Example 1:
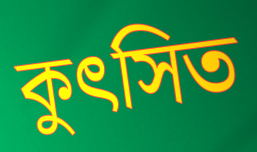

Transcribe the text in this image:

কুৎসিত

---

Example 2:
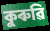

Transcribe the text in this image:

কুৰুৱি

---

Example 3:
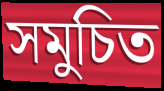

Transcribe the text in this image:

সমুচিত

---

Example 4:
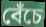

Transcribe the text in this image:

বেঁচে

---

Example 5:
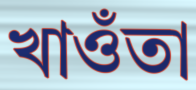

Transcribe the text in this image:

খাওঁতা